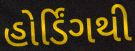
હોર્ડિંગથી